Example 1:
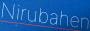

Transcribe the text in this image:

Nirubahen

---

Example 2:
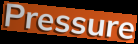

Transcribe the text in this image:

Pressure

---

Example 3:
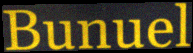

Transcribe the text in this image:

Bunuel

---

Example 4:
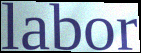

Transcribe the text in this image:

labor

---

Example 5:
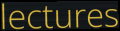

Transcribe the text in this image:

lectures